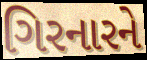
ગિરનારને